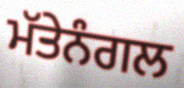
ਮੱਤੇਨੰਗਲ